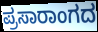
ಪ್ರಸಾರಾಂಗದ